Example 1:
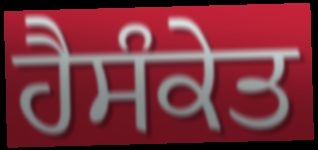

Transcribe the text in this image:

ਹੈਸੰਕੇਤ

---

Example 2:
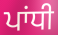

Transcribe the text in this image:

ਪਾਂਧੀ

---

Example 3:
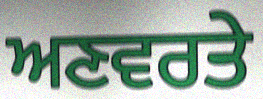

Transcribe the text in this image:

ਅਣਵਰਤੇ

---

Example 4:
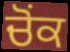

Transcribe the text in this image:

ਚੋਂਕ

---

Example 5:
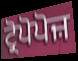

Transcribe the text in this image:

ਟ੍ਰੋਪੋਪੋਜ਼